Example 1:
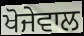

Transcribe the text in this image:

ਖੋਜੇਵਾਲ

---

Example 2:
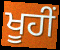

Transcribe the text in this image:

ਖੂਹੀਂ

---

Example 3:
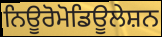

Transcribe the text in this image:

ਨਿਊਰੋਮੋਡਿਊਲੇਸ਼ਨ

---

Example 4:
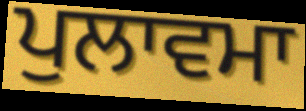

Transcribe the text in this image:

ਪੁਲਾਵਮਾ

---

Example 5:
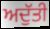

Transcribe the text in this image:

ਅਦੁੱਤੀ